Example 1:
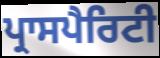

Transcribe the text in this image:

ਪ੍ਰਾਸਪੈਰਿਟੀ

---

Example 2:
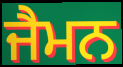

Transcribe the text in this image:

ਜੈਮਨ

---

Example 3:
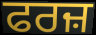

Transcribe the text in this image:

ਫਰਜ਼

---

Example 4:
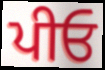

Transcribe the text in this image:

ਪੀਓ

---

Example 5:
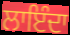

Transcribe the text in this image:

ਲਾਇੰਦਾ